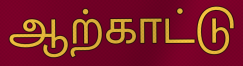
ஆற்காட்டு